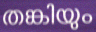
തങ്കിയും